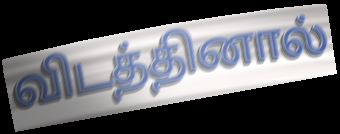
விடத்தினால்